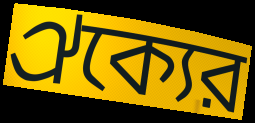
ঐক্যের